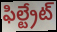
ఫిల్ట్రేట్